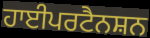
ਹਾਈਪਰਟੈਨਸ਼ਨ